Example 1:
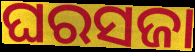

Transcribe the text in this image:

ଘରସଜା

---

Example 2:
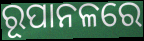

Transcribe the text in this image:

ରୂପାନଳରେ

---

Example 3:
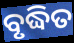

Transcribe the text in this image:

ବୃଦ୍ଧିତ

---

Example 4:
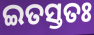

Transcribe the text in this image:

ଇତସ୍ତତଃ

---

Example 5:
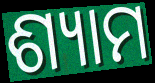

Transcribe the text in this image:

ଶ୍ୟାମ